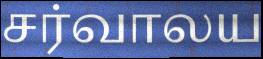
சர்வாலய